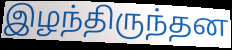
இழந்திருந்தன